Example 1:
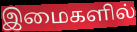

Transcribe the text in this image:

இமைகளில்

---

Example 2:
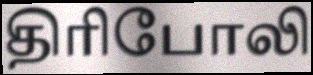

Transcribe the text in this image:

திரிபோலி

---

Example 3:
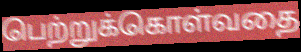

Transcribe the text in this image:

பெற்றுக்கொள்வதை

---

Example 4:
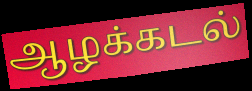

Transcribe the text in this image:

ஆழக்கடல்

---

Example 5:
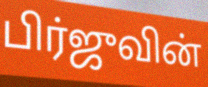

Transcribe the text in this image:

பிர்ஜுவின்